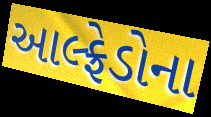
આલ્ફ્રેડોના